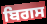
ਬਿਗਸ